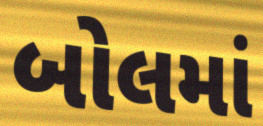
બોલમાં